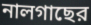
নালগাছের